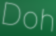
Doh